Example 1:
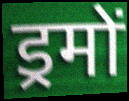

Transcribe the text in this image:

ड्रमों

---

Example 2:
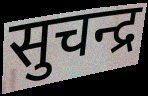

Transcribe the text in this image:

सुचन्द्र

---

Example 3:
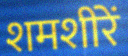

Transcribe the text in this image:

शमशीरें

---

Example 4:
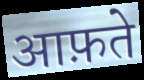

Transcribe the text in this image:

आफ़ते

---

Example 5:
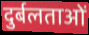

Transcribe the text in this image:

दुर्बलताओं